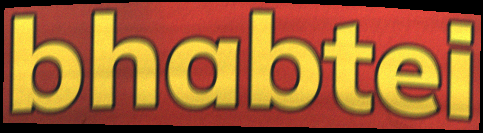
bhabtei